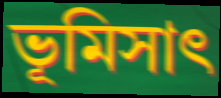
ভূমিসাৎ